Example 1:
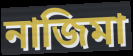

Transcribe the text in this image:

নাজিমা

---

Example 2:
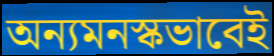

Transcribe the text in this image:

অন্যমনস্কভাবেই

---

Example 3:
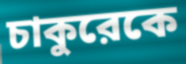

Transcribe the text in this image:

চাকুরেকে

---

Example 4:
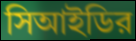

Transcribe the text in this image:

সিআইডির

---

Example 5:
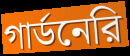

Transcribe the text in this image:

গার্ডনেরি